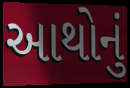
આથોનું